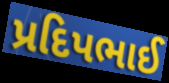
પ્રદિપભાઈ